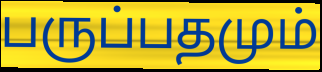
பருப்பதமும்